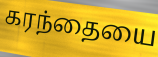
கரந்தையை